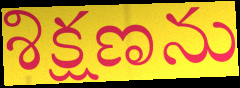
శిక్షణను